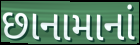
છાનામાનાં